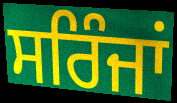
ਸਰਿੰਜਾਂ